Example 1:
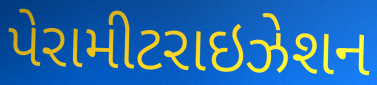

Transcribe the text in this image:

પેરામીટરાઇઝેશન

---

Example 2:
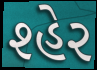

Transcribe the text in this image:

શ્હેર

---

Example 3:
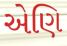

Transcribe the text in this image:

એણિ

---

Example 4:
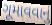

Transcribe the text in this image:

ગૂમાવવાનું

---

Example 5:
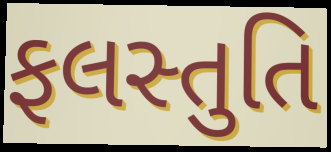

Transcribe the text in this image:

ફલસ્તુતિ